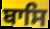
ਬਾਸਿ